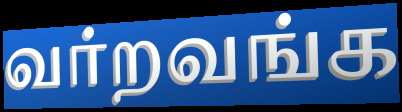
வர்றவங்க